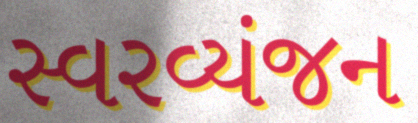
સ્વરવ્યંજન